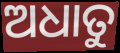
ଅଧାତୁ